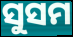
ସୁସମ